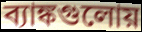
ব্যাঙ্কগুলোয়